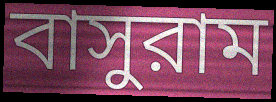
বাসুরাম